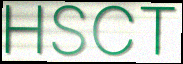
HSCT